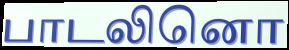
பாடலினொ